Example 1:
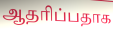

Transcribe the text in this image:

ஆதரிப்பதாக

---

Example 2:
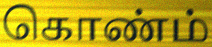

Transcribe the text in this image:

கொண்ம்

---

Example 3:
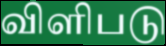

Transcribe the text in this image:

விளிபடு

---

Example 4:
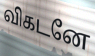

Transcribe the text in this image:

விகடனே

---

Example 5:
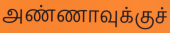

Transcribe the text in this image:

அண்ணாவுக்குச்